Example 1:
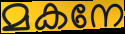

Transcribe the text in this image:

മകനേ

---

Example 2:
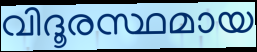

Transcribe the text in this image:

വിദൂരസ്ഥമായ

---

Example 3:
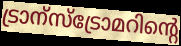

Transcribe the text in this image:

ട്രാന്സ്ട്രോമറിന്റെ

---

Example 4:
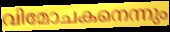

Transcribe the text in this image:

വിമോചകനെന്നും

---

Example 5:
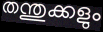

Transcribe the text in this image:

തന്തുക്കളും